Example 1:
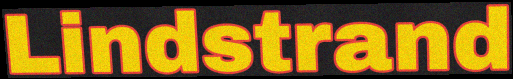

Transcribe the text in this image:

Lindstrand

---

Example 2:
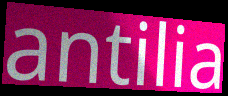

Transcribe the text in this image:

antilia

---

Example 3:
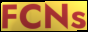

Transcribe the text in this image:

FCNs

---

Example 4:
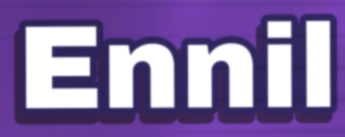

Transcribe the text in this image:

Ennil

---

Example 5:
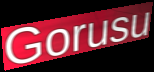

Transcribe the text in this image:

Gorusu